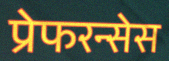
प्रेफरन्सेस